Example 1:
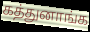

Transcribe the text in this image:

கத்துனாங்க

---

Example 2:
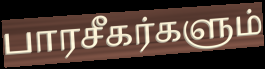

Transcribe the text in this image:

பாரசீகர்களும்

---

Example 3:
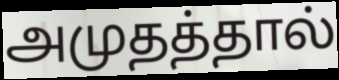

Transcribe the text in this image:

அமுதத்தால்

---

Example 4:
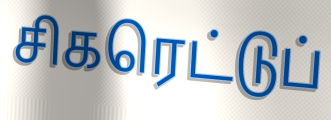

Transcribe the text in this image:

சிகரெட்டுப்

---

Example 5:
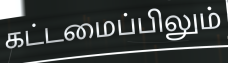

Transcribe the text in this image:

கட்டமைப்பிலும்